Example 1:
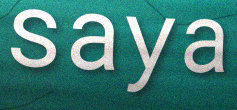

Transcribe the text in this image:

saya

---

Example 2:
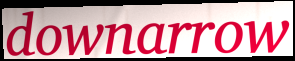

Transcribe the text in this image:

downarrow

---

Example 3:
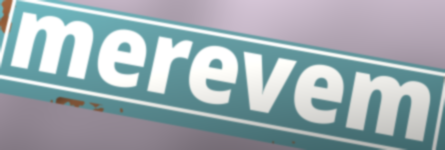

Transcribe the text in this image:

merevem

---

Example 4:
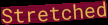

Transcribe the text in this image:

Stretched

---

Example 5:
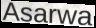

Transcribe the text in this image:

Asarwa